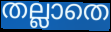
തല്ലാതെ